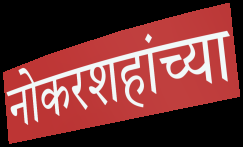
नोकरशहांच्या